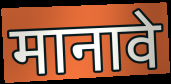
मानावे